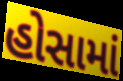
હોસામાં